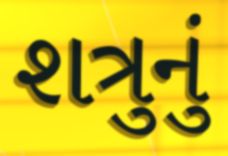
શત્રુનું